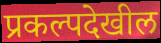
प्रकल्पदेखील